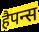
हैपन्स